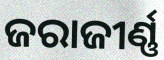
ଜରାଜୀର୍ଣ୍ଣ